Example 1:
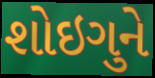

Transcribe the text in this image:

શોઇગુને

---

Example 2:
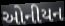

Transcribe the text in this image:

ઓનીયન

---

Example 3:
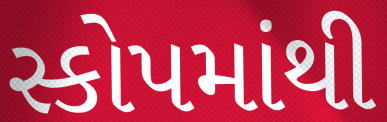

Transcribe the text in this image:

સ્કોપમાંથી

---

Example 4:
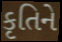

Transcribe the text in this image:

કૃતિને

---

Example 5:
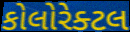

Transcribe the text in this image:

કોલોરેક્ટલ